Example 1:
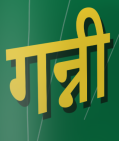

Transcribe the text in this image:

गन्नी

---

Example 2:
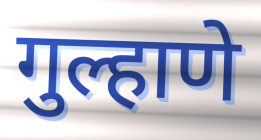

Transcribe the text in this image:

गुल्हाणे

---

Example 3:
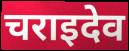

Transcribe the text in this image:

चराइदेव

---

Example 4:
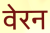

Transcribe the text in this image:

वेरन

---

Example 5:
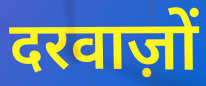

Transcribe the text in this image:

दरवाज़ों